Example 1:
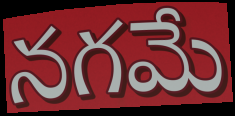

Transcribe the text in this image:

నగమే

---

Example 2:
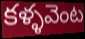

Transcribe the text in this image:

కళ్ళవెంట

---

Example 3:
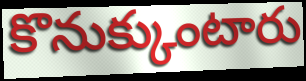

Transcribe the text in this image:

కొనుక్కుంటారు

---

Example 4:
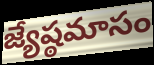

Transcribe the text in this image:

జ్యేష్ఠమాసం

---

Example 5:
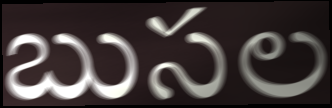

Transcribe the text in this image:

బుసల